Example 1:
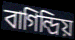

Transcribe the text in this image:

বাগিন্দ্ৰিয়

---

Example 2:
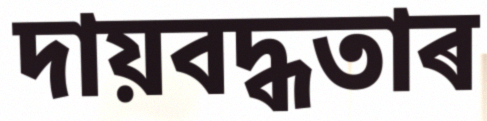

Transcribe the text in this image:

দায়বদ্ধতাৰ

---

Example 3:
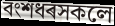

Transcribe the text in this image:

বংশধৰসকলে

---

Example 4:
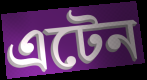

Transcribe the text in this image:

এটেন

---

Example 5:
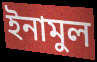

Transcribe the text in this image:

ইনামুল